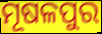
ମୂଷଳପୁର